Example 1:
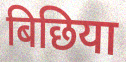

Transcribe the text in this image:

बिछिया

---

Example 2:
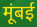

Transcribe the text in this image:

मूंबई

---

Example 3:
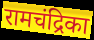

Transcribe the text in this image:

रामचंद्रिका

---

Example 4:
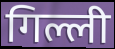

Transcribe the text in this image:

गिल्ली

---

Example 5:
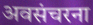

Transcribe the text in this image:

अवसंचरना